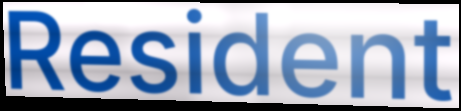
Resident